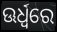
ଊର୍ଧ୍ୱରେ